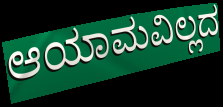
ಆಯಾಮವಿಲ್ಲದ